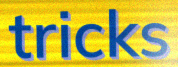
tricks